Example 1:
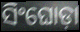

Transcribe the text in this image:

ସିଂଘୋଡ଼ା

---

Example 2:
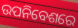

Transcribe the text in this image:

ଉପନିବେଶରେ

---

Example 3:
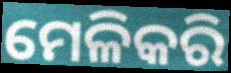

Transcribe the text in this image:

ମେଳିକରି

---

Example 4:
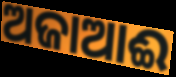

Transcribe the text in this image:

ଅଜାଆଈ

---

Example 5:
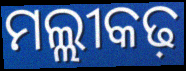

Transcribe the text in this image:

ମଲ୍ଲୀକଢ଼